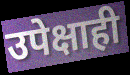
उपेक्षाही